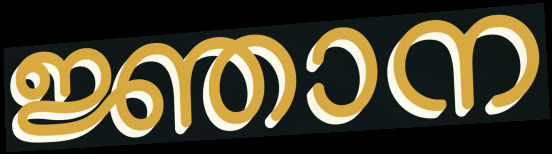
ജ്ഞാന